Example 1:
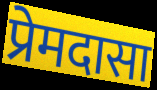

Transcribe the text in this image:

प्रेमदासा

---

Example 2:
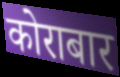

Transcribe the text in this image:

कोराबार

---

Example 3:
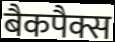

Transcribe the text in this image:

बैकपैक्स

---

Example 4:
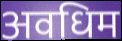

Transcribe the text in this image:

अवधिम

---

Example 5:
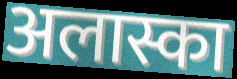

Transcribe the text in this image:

अलास्का